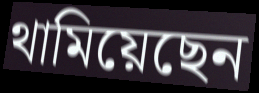
থামিয়েছেন